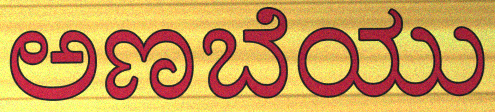
ಅಣಬೆಯು